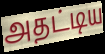
அதட்டிய